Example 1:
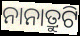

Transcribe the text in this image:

ନାନାତ୍ରୁଟି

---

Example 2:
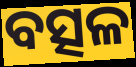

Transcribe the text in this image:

ବତ୍ସଳ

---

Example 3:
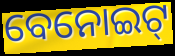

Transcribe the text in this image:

ବେନୋଇଟ୍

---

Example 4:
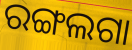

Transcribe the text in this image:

ରଙ୍ଗଲଗା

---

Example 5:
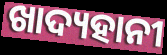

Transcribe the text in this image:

ଖାଦ୍ୟହାନୀ